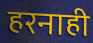
हरनाही